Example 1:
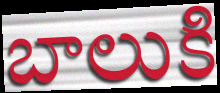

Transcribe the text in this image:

బాలుకి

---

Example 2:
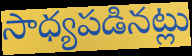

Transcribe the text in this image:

సాధ్యపడినట్లు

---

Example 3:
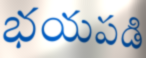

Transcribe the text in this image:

భయపడి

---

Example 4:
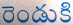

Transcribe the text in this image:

రెండుకి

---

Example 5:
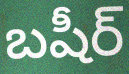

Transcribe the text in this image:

బషీర్